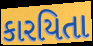
કારયિતા